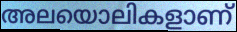
അലയൊലികളാണ്